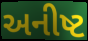
અનીષ્ટ